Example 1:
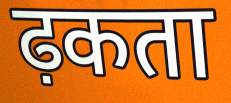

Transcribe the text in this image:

ढ़कता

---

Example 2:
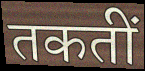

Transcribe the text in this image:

तकतीं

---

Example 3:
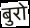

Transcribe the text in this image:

बुरो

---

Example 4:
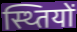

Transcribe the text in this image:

स्थ्तियों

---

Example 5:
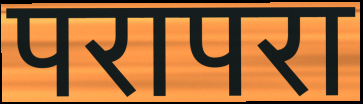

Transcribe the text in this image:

परापरा